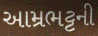
આમ્રભટ્ટની